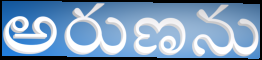
అరుణను